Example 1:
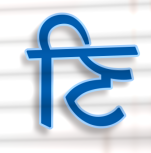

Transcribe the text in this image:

ਣਿ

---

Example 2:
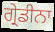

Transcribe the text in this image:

ਗ੍ਰੇਡੀਨਾ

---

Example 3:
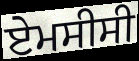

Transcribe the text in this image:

ਏਮਸੀਸੀ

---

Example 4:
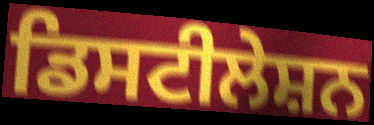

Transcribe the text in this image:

ਡਿਸਟੀਲੇਸ਼ਨ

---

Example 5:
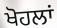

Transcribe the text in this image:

ਖੋਹਲਾਂ